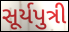
સૂર્યપુત્રી